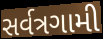
સર્વત્રગામી